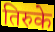
तिरुके